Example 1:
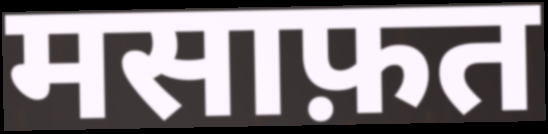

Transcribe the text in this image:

मसाफ़त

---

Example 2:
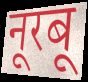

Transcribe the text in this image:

नूरबू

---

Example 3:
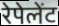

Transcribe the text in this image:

रेपेलेंट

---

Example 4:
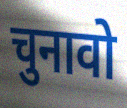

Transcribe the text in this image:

चुनावो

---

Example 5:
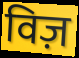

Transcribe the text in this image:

विज़